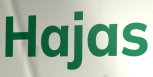
Hajas